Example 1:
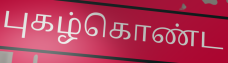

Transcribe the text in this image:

புகழ்கொண்ட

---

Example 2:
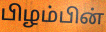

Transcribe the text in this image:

பிழம்பின்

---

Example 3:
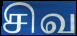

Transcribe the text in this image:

சிவ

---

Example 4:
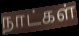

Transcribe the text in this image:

நாட்கள்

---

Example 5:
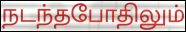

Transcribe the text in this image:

நடந்தபோதிலும்